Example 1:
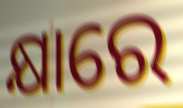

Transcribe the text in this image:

କ୍ଷାରେ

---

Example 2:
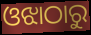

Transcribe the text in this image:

ଓଝାଠାରୁ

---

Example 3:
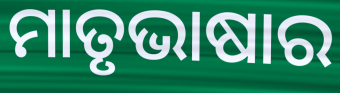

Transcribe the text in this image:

ମାତୃଭାଷାର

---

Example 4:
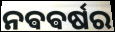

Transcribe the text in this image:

ନଵଵର୍ଷର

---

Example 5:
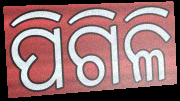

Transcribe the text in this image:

ପିଗିଳି